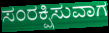
ಸಂರಕ್ಷಿಸುವಾಗ